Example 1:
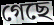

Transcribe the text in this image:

গেছে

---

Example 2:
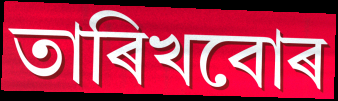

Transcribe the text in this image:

তাৰিখবোৰ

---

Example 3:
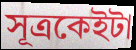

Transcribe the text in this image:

সূত্ৰকেইটা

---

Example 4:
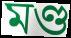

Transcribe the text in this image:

মণ্ড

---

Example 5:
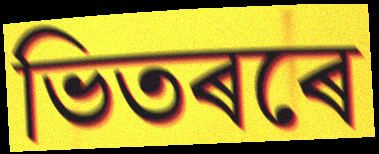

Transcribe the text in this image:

ভিতৰৰে